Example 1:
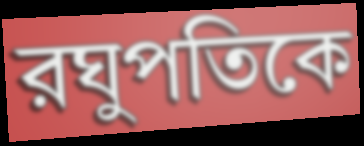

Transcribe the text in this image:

রঘুপতিকে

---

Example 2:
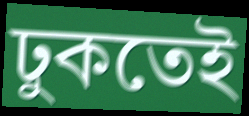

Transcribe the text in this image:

ঢুকতেই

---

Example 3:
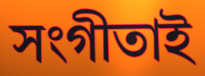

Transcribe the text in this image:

সংগীতাই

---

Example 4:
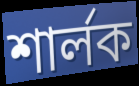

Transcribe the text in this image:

শার্লক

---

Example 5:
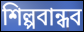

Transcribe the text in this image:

শিল্পবান্ধব